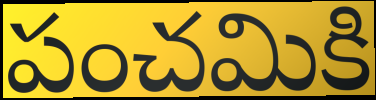
పంచమికి